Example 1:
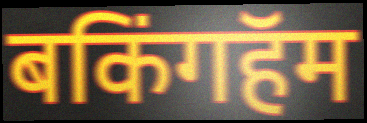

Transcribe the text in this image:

बकिंगहॅम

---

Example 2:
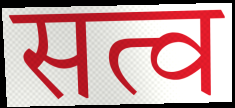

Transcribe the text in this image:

सत्व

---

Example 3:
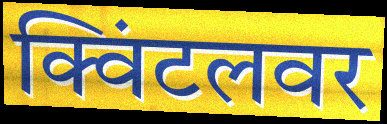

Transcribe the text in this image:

क्विंटलवर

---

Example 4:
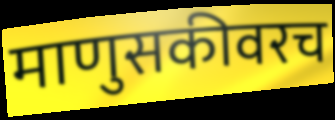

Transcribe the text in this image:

माणुसकीवरच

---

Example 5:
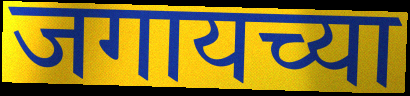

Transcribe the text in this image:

जगायच्या